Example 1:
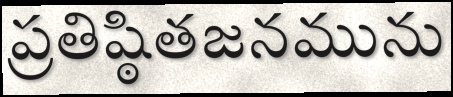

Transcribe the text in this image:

ప్రతిష్ఠితజనమును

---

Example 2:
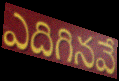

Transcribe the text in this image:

ఎదిగినవే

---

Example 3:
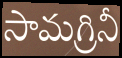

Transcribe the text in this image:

సామగ్రినీ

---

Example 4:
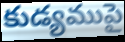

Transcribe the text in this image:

కుడ్యముపై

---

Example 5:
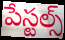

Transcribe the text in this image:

పేస్టల్స్